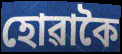
হোৱাকৈ